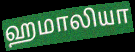
ஹமாலியா